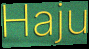
Haju